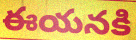
ఈయనకి